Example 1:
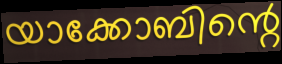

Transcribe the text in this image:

യാക്കോബിന്റെ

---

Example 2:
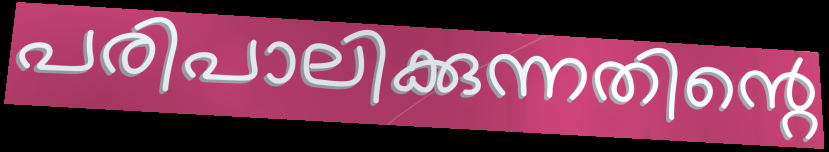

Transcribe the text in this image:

പരിപാലിക്കുന്നതിന്റെ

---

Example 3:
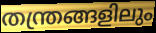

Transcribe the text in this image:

തന്ത്രങ്ങളിലും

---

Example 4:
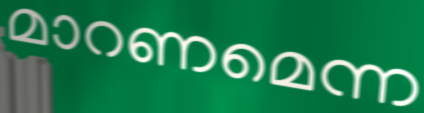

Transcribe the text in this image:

മാറണമെന്ന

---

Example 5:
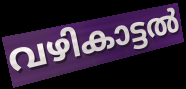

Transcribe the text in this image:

വഴികാട്ടൽ